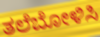
ತಲೆಬೋಳಿಸಿ